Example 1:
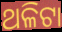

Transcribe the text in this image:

ଥଳିଟା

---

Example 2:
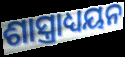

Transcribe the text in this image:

ଶାସ୍ତ୍ରାଧ୍ୟୟନ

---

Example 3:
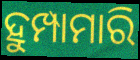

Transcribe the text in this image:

ହୁମ୍ପାମାରି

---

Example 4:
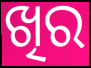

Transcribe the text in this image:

ଖିର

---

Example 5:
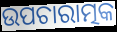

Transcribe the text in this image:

ଉପଚାରାତ୍ମକ